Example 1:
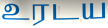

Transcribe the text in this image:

உரடய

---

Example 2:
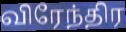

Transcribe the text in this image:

விரேந்திர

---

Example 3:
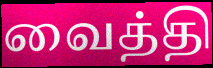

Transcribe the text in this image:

வைத்தி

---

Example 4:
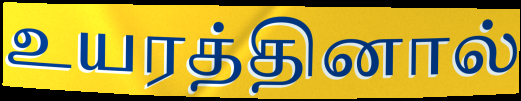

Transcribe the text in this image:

உயரத்தினால்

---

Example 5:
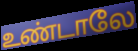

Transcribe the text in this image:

உண்டாலே